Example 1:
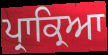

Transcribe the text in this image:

ਪ੍ਰਾਕ੍ਰਿਆ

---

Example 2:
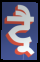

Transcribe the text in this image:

ਟ੍ਰੈ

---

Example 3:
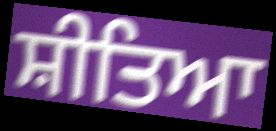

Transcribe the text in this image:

ਸ਼ੀਤਿਆ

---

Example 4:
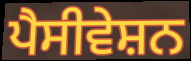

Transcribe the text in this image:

ਪੈਸੀਵੇਸ਼ਨ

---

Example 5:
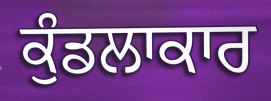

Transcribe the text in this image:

ਕੁੰਡਲਾਕਾਰ